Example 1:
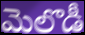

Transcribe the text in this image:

మెలొడీ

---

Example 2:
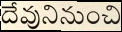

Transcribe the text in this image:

దేవునినుంచి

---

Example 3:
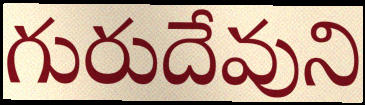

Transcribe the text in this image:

గురుదేవుని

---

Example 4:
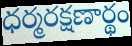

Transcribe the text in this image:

ధర్మరక్షణార్థం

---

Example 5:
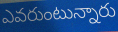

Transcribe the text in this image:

ఎవరుంటున్నారు